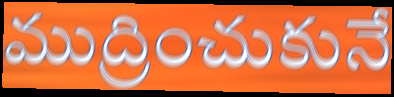
ముద్రించుకునే